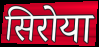
सिरोया